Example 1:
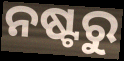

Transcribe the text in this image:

ନଷ୍ଟରୁ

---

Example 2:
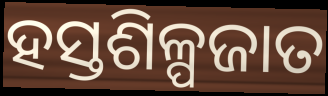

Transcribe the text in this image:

ହସ୍ତଶିଳ୍ପଜାତ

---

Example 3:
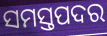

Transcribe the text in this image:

ସମସ୍ତପଦର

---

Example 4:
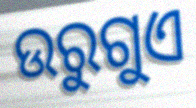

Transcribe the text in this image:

ଉରୁଗୁଏ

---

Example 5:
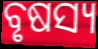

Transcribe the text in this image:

ବୃଷସ୍ୟ